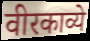
वीरकाव्ये